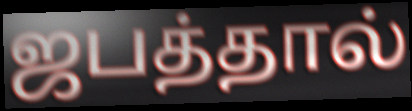
ஜபத்தால்